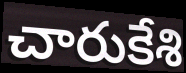
చారుకేశి